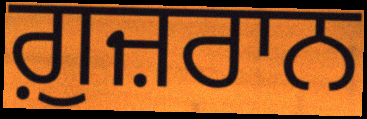
ਗ਼ੁਜ਼ਰਾਨ